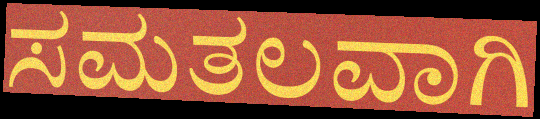
ಸಮತಲವಾಗಿ